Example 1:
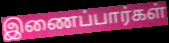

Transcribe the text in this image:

இணைப்பார்கள்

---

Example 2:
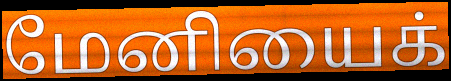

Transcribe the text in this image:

மேனியைக்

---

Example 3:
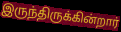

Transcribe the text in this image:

இருந்திருக்கின்றார்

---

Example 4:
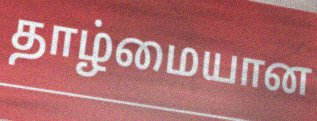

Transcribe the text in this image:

தாழ்மையான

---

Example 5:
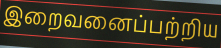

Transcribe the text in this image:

இறைவனைப்பற்றிய